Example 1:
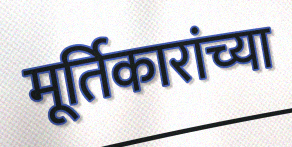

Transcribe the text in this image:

मूर्तिकारांच्या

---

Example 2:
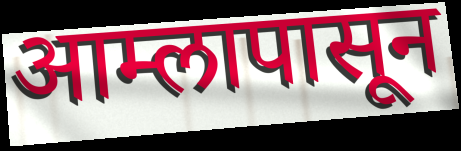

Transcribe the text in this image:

आम्लापासून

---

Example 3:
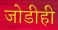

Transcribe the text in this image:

जोडीही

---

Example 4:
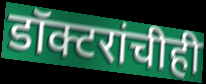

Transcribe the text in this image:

डॉक्टरांचीही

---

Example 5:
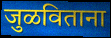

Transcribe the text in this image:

जुळविताना